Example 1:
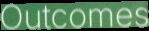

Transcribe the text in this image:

Outcomes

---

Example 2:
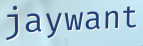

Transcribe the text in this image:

jaywant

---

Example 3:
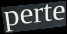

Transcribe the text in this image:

perte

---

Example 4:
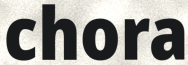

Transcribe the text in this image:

chora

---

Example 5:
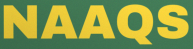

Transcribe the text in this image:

NAAQS